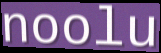
noolu